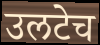
उलटेच